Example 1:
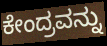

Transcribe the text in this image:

ಕೇಂದ್ರವನ್ನು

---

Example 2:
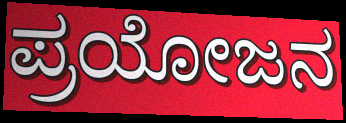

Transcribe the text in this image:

ಪ್ರಯೋಜನ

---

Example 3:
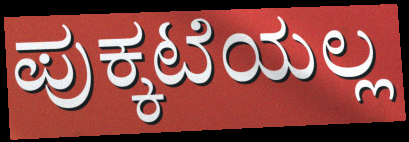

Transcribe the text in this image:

ಪುಕ್ಕಟೆಯಲ್ಲ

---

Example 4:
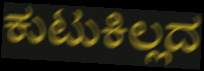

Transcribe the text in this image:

ಕುಟುಕಿಲ್ಲದ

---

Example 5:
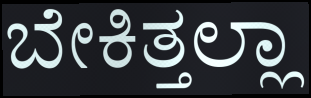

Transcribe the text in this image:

ಬೇಕಿತ್ತಲ್ಲಾ